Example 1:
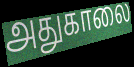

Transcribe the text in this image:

அதுகாலை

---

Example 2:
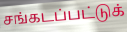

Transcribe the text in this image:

சங்கடப்பட்டுக்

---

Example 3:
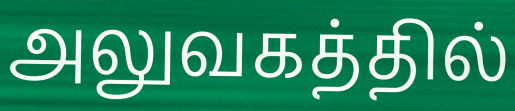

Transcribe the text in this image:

அலுவகத்தில்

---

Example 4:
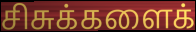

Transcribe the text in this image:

சிசுக்களைக்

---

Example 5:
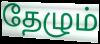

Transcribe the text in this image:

தேழும்